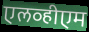
एलव्हीएम